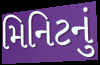
મિનિટનું